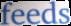
feeds